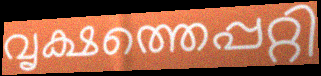
വൃക്ഷത്തെപ്പറ്റി